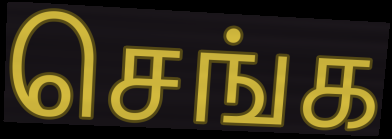
செங்க